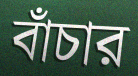
বাঁচার